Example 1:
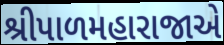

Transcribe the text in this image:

શ્રીપાળમહારાજાએ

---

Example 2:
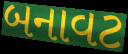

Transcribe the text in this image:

બનાવટ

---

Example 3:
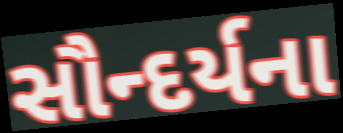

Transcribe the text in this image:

સૌન્દર્યના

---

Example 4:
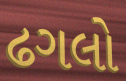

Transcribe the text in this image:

ઢગલો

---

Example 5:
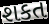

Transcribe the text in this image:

શકત